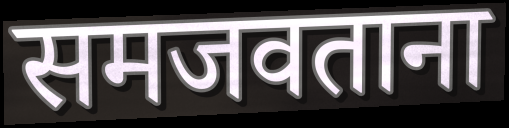
समजवताना